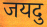
जयदु